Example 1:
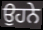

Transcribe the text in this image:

ਉਹਨੇ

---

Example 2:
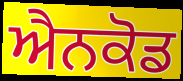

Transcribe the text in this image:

ਐਨਕੋਡ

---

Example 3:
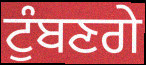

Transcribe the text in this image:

ਟੁੰਬਣਗੇ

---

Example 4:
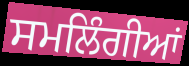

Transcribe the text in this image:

ਸਮਲਿੰਗੀਆਂ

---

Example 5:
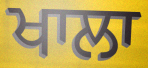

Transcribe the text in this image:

ਖਾਲਾ